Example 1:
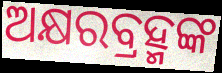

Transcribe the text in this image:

ଅକ୍ଷରବ୍ରହ୍ମଙ୍କ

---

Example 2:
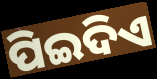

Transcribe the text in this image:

ପିଇଦିଏ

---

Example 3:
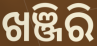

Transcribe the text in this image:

ଖଞ୍ଜିରି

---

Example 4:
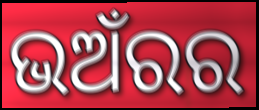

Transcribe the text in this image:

ଭଅଁରର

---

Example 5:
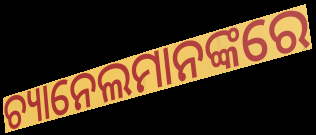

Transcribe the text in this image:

ଚ୍ୟାନେଲମାନଙ୍କରେ